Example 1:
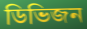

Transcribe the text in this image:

ডিভিজন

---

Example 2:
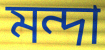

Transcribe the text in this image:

মন্দা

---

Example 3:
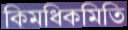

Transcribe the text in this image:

কিমধিকমিতি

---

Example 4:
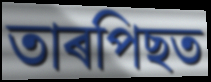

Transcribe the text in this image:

তাৰপিছত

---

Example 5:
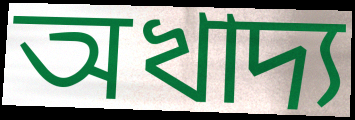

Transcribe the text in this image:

অখাদ্য